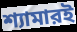
শ্যামারই